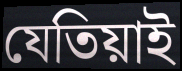
যেতিয়াই